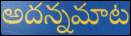
అదన్నమాట